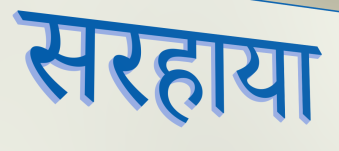
सरहाया